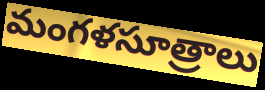
మంగళసూత్రాలు